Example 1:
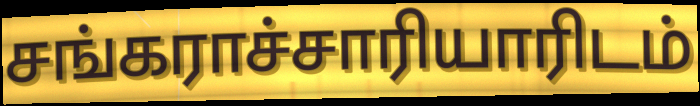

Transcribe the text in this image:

சங்கராச்சாரியாரிடம்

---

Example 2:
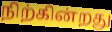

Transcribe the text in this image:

நிற்கின்றது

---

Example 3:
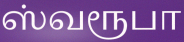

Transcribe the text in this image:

ஸ்வரூபா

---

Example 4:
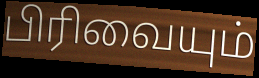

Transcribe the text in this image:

பிரிவையும்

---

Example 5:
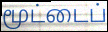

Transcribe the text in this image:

மூட்டைப்